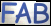
FAB